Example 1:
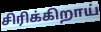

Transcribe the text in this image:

சிரிக்கிறாய்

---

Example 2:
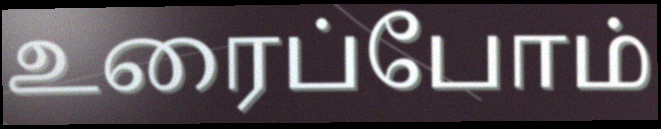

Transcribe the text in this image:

உரைப்போம்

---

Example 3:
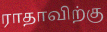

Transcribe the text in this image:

ராதாவிற்கு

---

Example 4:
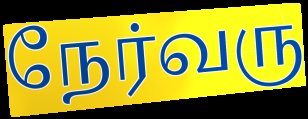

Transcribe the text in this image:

நேர்வரு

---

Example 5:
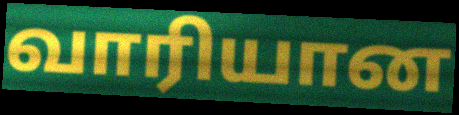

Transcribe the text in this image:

வாரியான